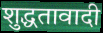
शुद्धतावादी